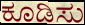
ಕೂಡಿಸು